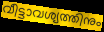
വീട്ടാവശ്യത്തിനും